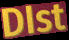
DIst